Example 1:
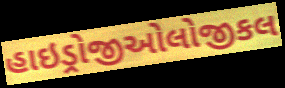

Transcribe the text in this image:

હાઇડ્રોજીઓલોજીકલ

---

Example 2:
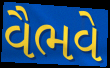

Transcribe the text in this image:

વૈભવે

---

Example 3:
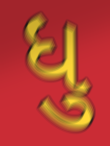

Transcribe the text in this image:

ધુ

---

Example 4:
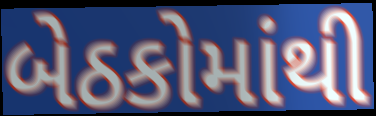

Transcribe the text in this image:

બેઠકોમાંથી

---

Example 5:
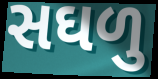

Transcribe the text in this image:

સઘળુ